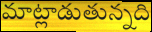
మాట్లాడుతున్నది